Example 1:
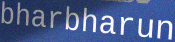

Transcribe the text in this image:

bharbharun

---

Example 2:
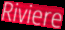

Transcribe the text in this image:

Riviere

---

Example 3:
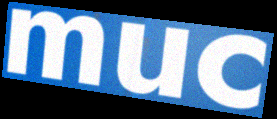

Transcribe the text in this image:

muc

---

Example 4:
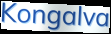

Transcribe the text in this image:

Kongalva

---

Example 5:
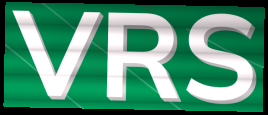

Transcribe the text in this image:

VRS